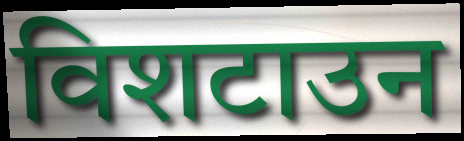
विशटाउन